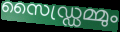
സൈഡ്ഡ്രമ്മും